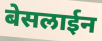
बेसलाईन